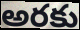
అరకు